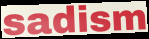
sadism